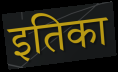
इतिका